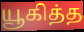
யூகித்த